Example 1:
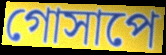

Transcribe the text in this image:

গোসাপে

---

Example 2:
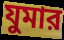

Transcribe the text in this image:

যুমার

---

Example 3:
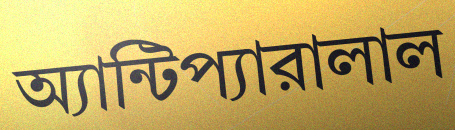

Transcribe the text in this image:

অ্যান্টিপ্যারালাল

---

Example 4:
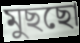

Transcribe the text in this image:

মুছছো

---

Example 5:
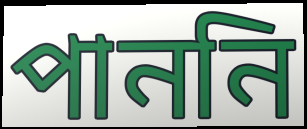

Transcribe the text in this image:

পাননি